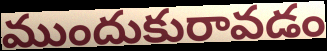
ముందుకురావడం